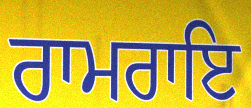
ਰਾਮਰਾਇ